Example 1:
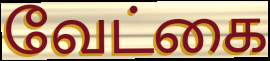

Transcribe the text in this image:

வேட்கை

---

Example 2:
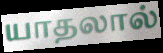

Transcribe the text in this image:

யாதலால்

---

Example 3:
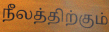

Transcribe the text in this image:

நீலத்திற்கும்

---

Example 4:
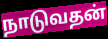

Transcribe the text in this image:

நாடுவதன்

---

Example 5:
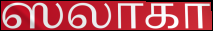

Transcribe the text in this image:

ஸலாகா